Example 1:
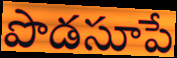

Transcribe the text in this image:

పొడసూపే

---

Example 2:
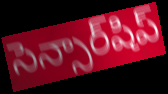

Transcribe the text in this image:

సెన్సార్‌షిప్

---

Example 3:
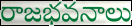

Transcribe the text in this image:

రాజభవనాలు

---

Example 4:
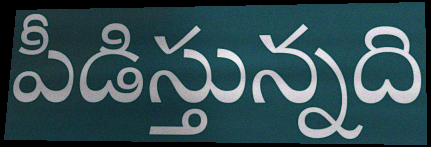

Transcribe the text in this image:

పీడిస్తున్నది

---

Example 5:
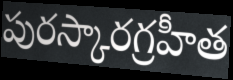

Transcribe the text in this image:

పురస్కారగ్రహీత